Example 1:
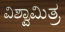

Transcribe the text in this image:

ವಿಶ್ವಾಮಿತ್ರ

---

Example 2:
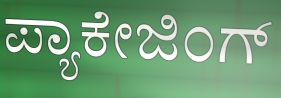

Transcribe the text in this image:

ಪ್ಯಾಕೇಜಿಂಗ್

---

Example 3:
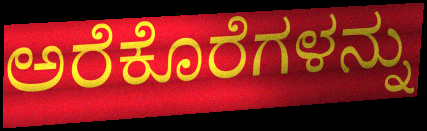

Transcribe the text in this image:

ಅರೆಕೊರೆಗಳನ್ನು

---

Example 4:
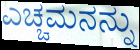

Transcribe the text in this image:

ಎಚ್ಚಮನನ್ನು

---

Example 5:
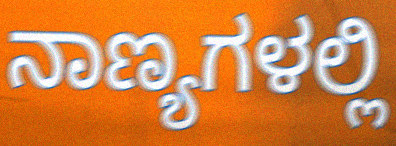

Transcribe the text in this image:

ನಾಣ್ಯಗಳಲ್ಲಿ